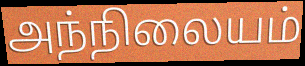
அந்நிலையம்